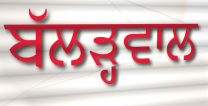
ਬੱਲੜ੍ਹਵਾਲ